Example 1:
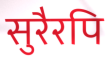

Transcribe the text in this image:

सुरैरपि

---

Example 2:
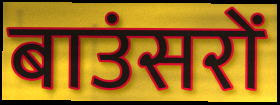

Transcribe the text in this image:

बाउंसरों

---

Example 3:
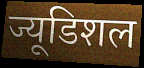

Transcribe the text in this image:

ज्यूडिशल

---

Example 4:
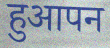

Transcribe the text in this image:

हुआपन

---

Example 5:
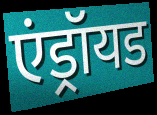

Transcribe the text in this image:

एंड्रॉयड